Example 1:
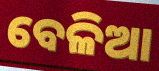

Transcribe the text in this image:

ବେଳିଆ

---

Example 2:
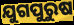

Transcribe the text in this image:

ଯୁଗପୁରୁଷ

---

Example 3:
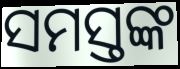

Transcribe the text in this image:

ସମସ୍ତଙ୍କ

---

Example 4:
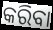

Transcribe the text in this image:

କରିବା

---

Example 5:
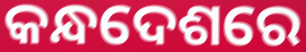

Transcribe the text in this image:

କନ୍ଧଦେଶରେ